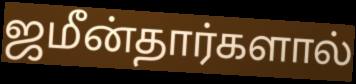
ஜமீன்தார்களால்